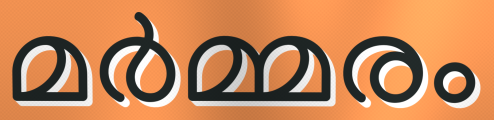
മർമ്മരം